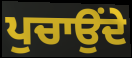
ਪੁਚਾਉਂਦੇ